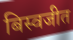
बिस्वजीत